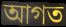
আগত